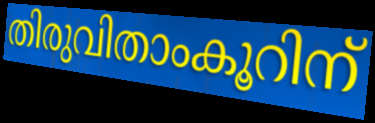
തിരുവിതാംകൂറിന്